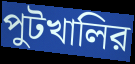
পুটখালির